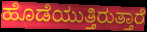
ಹೊಡೆಯುತ್ತಿರುತ್ತಾರೆ